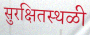
सुरक्षितस्थळी